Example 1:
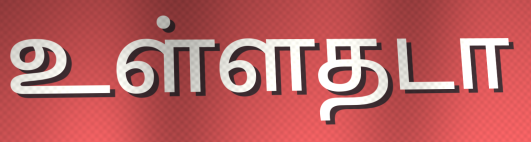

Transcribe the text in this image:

உள்ளதடா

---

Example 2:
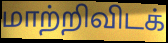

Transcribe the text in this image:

மாற்றிவிடக்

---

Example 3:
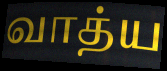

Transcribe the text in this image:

வாத்ய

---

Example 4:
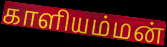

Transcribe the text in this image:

காளியம்மன்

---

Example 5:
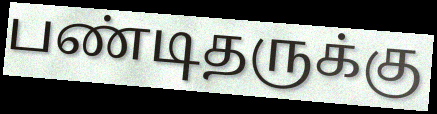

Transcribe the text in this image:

பண்டிதருக்கு